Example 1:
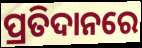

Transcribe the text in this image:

ପ୍ରତିଦାନରେ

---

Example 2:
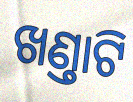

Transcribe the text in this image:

ଖଣ୍ତାଟି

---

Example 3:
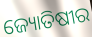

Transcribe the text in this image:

ଜ୍ୟୋତିଷୀର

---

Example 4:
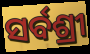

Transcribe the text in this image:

ସର୍ବଶ୍ରୀ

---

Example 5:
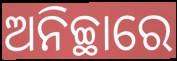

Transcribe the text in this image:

ଅନିଚ୍ଛାରେ